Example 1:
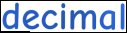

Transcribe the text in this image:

decimal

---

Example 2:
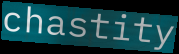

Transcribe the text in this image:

chastity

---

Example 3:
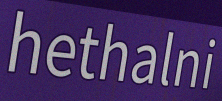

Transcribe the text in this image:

hethalni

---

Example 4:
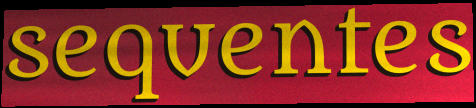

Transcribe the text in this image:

sequentes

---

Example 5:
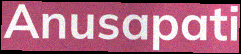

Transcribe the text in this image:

Anusapati